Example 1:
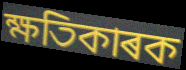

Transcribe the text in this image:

ক্ষতিকাৰক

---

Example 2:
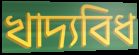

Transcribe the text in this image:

খাদ্যবিধ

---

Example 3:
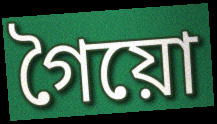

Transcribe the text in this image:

গৈয়ো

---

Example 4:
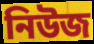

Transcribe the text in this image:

নিউজ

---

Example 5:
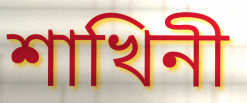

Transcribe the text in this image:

শাখিনী